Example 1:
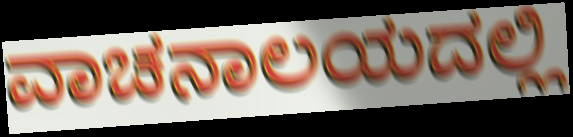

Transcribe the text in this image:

ವಾಚನಾಲಯದಲ್ಲಿ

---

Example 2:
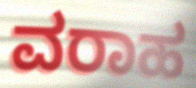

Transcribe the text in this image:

ವರಾಹ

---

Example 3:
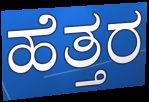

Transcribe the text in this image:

ಹೆತ್ತರ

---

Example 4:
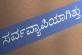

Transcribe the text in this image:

ಸರ್ವವ್ಯಾಪಿಯಾಗಿತ್ತು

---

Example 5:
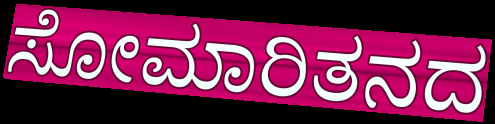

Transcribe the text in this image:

ಸೋಮಾರಿತನದ